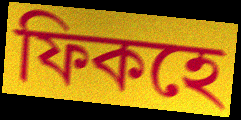
ফিকহে